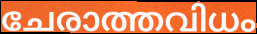
ചേരാത്തവിധം